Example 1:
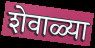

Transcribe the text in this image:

शेवाळ्या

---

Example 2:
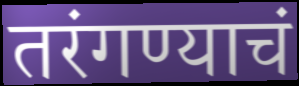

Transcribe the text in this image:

तरंगण्याचं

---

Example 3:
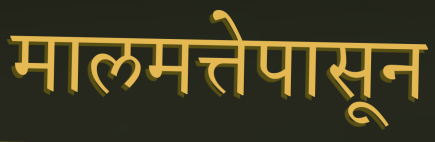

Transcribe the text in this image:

मालमत्तेपासून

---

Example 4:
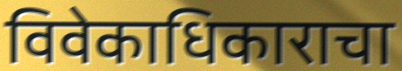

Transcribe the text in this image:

विवेकाधिकाराचा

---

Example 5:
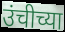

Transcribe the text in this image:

उंचीच्या